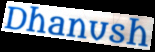
Dhanush